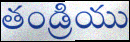
తండ్రియు